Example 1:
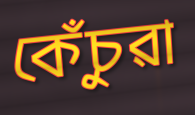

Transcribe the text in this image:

কেঁচুৱা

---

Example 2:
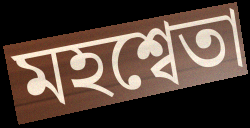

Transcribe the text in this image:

মহশ্বেতা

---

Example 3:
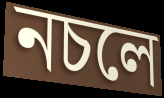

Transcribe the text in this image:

নচলে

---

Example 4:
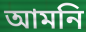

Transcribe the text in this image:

আমনি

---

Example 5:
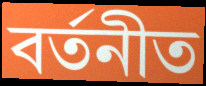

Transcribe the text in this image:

বৰ্তনীত